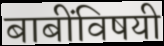
बाबींविषयी